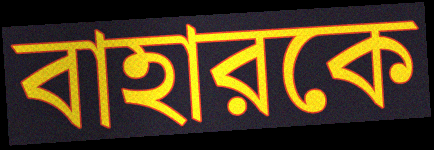
বাহারকে